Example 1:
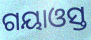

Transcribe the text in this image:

ଗୟାଓସ୍ତ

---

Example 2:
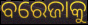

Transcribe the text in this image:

ବରେଜାକୁ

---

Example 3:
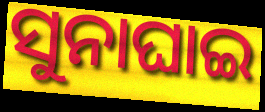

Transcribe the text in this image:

ସୁନାଘାଇ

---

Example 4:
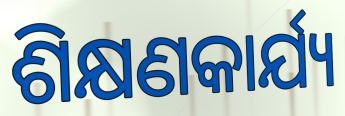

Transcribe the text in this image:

ଶିକ୍ଷଣକାର୍ଯ୍ୟ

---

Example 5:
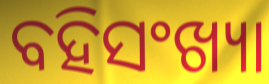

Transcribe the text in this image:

ବହିସଂଖ୍ୟା